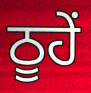
ਠੂਹੇਂ